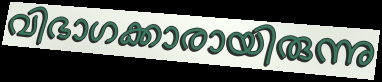
വിഭാഗക്കാരായിരുന്നു